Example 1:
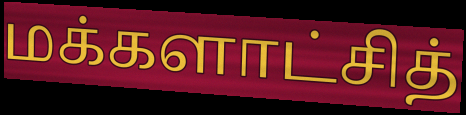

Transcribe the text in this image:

மக்களாட்சித்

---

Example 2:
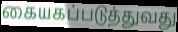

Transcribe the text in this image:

கையகப்படுத்துவது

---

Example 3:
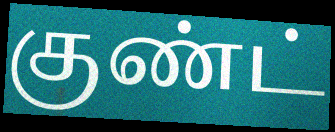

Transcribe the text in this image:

குண்ட்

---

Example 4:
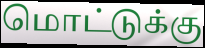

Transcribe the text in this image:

மொட்டுக்கு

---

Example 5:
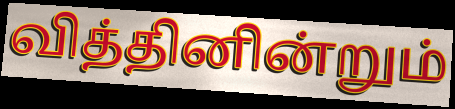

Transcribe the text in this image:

வித்தினின்றும்